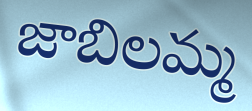
జాబిలమ్మ